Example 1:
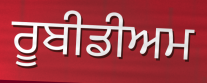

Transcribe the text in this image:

ਰੂਬੀਡੀਅਮ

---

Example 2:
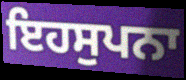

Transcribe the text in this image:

ਇਹਸੁਪਨਾ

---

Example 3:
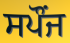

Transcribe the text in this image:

ਸਪੌਂਜ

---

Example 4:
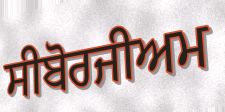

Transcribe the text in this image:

ਸੀਬੋਰਜੀਅਮ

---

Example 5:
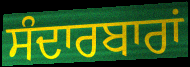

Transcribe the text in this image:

ਸੰਦਾਰਬਾਰਾਂ